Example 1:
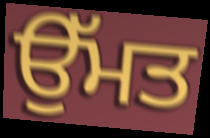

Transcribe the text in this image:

ਉੱਮਤ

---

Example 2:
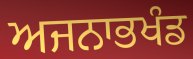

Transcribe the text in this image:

ਅਜਨਾਭਖੰਡ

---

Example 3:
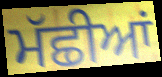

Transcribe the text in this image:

ਮੱਛੀਆਂ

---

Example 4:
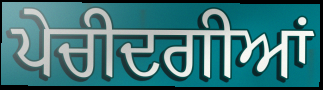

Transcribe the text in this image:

ਪੇਚੀਦਗੀਆਂ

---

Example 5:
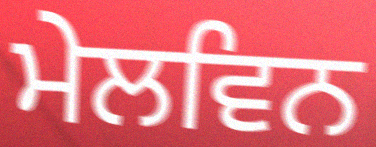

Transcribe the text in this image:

ਮੇਲਵਿਨ